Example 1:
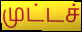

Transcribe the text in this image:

முட்டச்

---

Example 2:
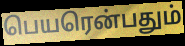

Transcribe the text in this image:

பெயரென்பதும்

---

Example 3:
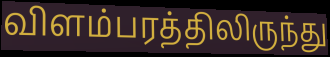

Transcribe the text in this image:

விளம்பரத்திலிருந்து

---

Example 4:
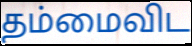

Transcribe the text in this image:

தம்மைவிட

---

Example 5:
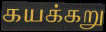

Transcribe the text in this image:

கயக்கறு